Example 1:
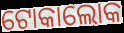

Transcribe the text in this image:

ଟୋକାଲୋକ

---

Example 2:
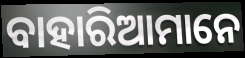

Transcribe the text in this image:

ବାହାରିଆମାନେ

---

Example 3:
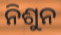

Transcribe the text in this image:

ନିଶୁନ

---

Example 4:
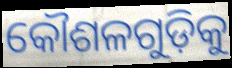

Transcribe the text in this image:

କୌଶଳଗୁଡ଼ିକୁ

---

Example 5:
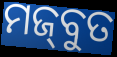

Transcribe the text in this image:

ମଜ୍‌ବୁତ